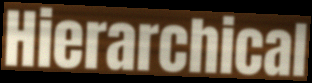
Hierarchical